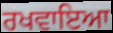
ਰਖਵਾਇਆ